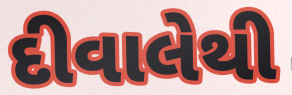
દીવાલેથી